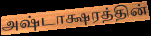
அஷ்டாக்ஷரத்தின்